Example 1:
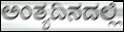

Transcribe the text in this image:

ಅಂತ್ಯದಿನದಲ್ಲಿ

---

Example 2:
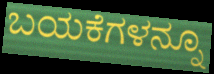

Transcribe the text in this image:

ಬಯಕೆಗಳನ್ನೂ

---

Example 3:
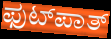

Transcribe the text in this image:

ಫುಟ್‍ಪಾತ್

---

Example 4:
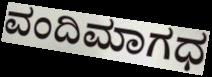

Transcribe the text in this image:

ವಂದಿಮಾಗಧ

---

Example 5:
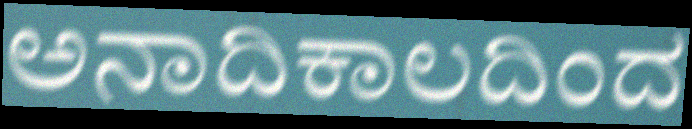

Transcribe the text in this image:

ಅನಾದಿಕಾಲದಿಂದ